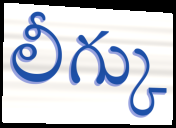
లీగ్కు